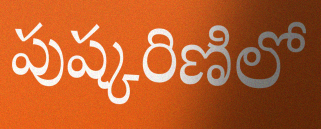
పుష్కరిణిలో